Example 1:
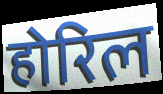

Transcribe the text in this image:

होरिल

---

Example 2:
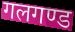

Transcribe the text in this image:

गलगण्ड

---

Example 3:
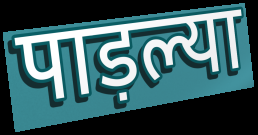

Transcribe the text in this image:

पाड़ल्या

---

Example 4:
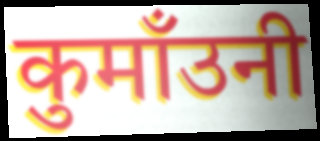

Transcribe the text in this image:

कुमाँउनी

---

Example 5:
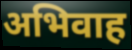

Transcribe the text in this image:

अभिवाह